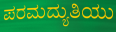
ಪರಮದ್ಯುತಿಯು